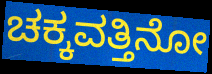
ಚಕ್ಕವತ್ತಿನೋ